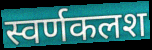
स्वर्णकलश